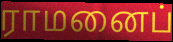
ராமனைப்